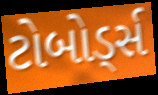
ટોબોર્ડ્સ